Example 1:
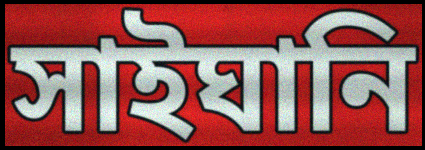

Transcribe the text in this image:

সাইঘানি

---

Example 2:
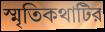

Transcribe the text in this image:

স্মৃতিকথাটির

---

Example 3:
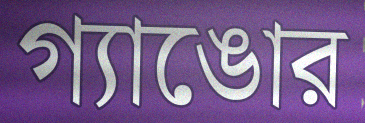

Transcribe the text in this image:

গ্যাঙোর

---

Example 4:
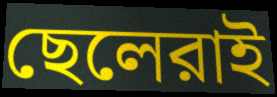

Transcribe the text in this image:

ছেলেরাই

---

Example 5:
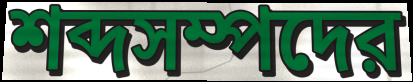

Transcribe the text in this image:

শব্দসম্পদের